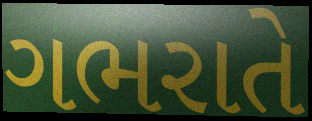
ગભરાતે